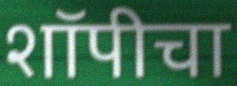
शॉपीचा